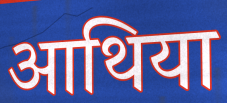
आथिया